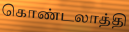
கொண்டலாத்தி